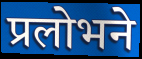
प्रलोभने